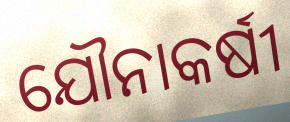
ଯୌନାକର୍ଷୀ